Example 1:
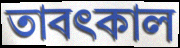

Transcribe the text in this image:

তাবৎকাল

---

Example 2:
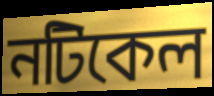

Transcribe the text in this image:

নটিকেল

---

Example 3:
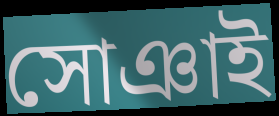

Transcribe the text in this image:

সোঞাই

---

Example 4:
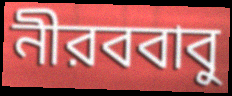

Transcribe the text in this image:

নীরববাবু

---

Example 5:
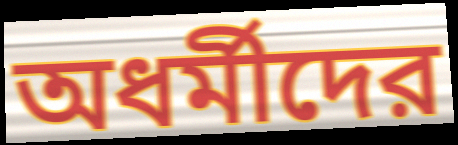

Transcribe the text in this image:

অধর্মীদের